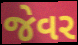
જેવર